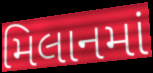
મિલાનમાં